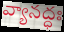
వ్యానద్ధః